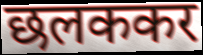
छलककर